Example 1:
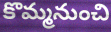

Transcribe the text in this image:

కొమ్మనుంచి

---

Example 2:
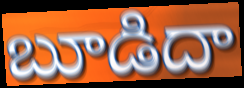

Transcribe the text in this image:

బూడిదా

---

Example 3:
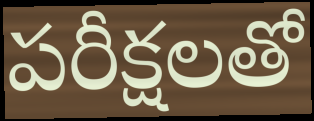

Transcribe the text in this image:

పరీక్షలతో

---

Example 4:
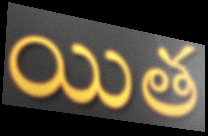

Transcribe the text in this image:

యిత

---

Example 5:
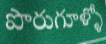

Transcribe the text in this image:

పొరుగూళ్ళో